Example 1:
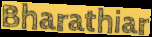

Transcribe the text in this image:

Bharathiar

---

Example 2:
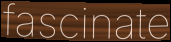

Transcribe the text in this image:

fascinate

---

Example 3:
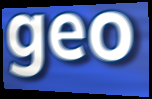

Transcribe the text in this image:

geo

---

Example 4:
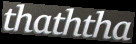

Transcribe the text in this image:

thaththa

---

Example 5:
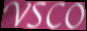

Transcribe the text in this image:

VSCO